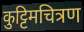
कुट्टिमचित्रण